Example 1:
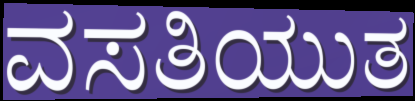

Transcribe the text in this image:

ವಸತಿಯುತ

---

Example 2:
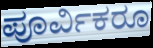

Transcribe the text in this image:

ಪೂರ್ವಿಕರೂ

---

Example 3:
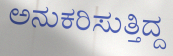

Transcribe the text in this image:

ಅನುಕರಿಸುತ್ತಿದ್ದ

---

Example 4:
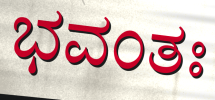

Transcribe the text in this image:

ಭವಂತಃ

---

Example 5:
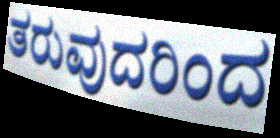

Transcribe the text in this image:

ತರುವುದರಿಂದ